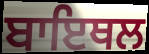
ਬਾਇਥਲ